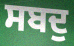
ਸਬਦੁ